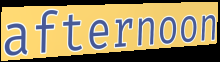
afternoon